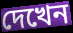
দেখেন